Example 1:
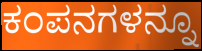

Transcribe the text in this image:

ಕಂಪನಗಳನ್ನೂ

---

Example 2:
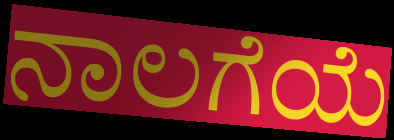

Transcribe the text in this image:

ನಾಲಗೆಯೆ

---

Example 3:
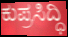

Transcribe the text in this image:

ಕುಪ್ರಸಿದ್ಧಿ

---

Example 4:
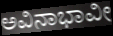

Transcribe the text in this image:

ಅವಿನಾಭಾವೀ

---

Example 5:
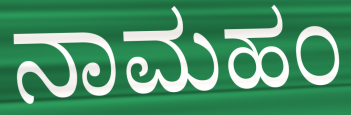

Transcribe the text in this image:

ನಾಮಹಂ